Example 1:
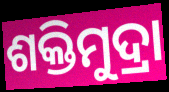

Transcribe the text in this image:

ଶକ୍ତିମୁଦ୍ରା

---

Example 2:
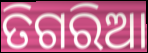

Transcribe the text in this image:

ତିଗରିଆ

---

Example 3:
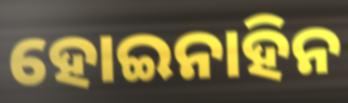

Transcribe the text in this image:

ହୋଇନାହିନ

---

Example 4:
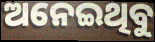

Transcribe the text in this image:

ଅନେଇଥିବୁ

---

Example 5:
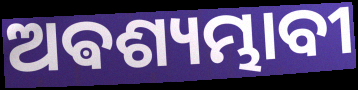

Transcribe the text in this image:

ଅଵଶ୍ୟମ୍ଭାବୀ